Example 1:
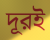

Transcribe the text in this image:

দূরই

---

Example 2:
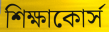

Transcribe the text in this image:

শিক্ষাকোর্স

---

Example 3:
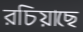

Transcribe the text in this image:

রচিয়াছে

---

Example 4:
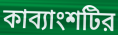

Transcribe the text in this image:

কাব্যাংশটির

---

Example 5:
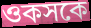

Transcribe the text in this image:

ওকসকে